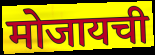
मोजायची